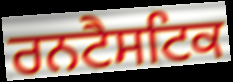
ਰਨਟੈਸਟਿਕ